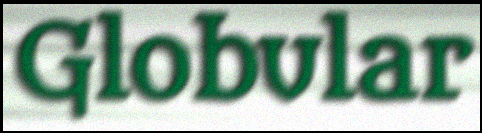
Globular